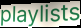
playlists